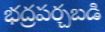
భద్రపర్చబడి